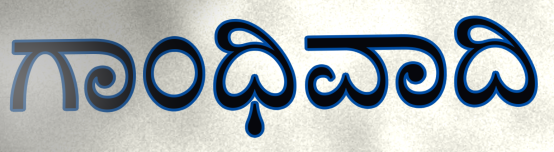
ಗಾಂಧಿವಾದಿ